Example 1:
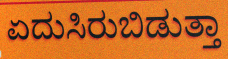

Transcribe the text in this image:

ಏದುಸಿರುಬಿಡುತ್ತಾ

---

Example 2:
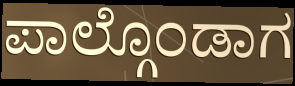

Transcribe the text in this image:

ಪಾಲ್ಗೊಂಡಾಗ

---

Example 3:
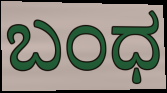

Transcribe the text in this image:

ಬಂಧ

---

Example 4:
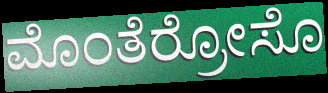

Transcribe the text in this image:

ಮೊಂತೆರ್ರೋಸೊ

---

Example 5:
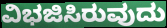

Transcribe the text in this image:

ವಿಭಜಿಸಿರುವುದು